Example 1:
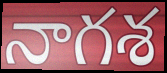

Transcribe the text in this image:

నాగశ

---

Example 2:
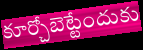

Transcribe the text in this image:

కూర్చోబెట్టేందుకు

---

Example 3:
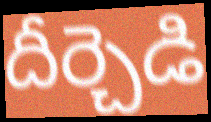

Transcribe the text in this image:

దీర్చెడి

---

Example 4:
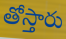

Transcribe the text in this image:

తోస్తారు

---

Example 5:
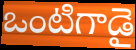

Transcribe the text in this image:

ఒంటిగాడై